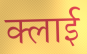
क्लाई